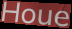
Houe